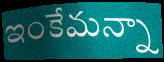
ఇంకేమన్నా